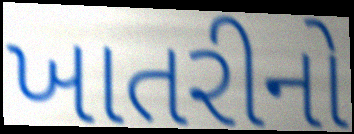
ખાતરીનો